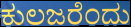
ಕುಲಜರೆಂದು